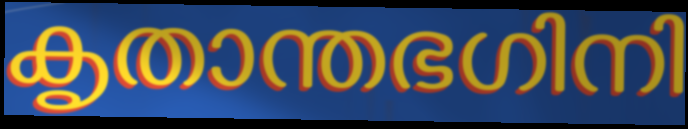
കൃതാന്തഭഗിനി